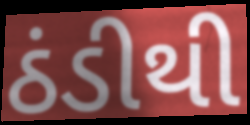
ઠંડીથી